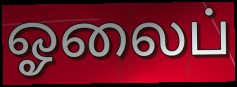
ஓலைப்